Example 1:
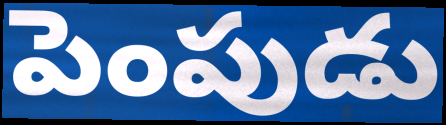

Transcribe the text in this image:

పెంపుడు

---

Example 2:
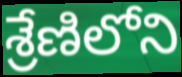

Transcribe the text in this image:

శ్రేణిలోని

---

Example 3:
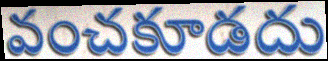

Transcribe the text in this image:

వంచకూడదు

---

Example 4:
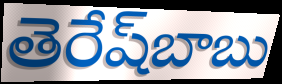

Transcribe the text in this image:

తెరేష్‌బాబు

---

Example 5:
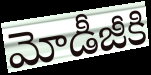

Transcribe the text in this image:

మోడీజీకి